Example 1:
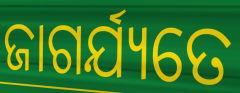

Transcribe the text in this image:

ଜାଗର୍ଯ୍ୟତେ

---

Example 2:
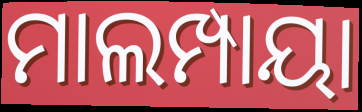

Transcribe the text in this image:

ମାଲମ୍ପାୟା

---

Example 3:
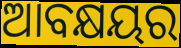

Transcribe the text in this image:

ଆବକ୍ଷୟର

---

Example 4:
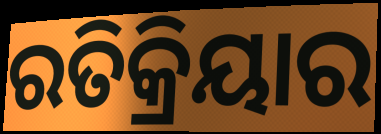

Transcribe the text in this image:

ରତିକ୍ରିୟାର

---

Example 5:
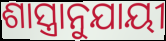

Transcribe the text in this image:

ଶାସ୍ତ୍ରାନୁଯାୟୀ